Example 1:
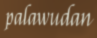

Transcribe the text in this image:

palawudan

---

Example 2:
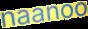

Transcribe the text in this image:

naanoo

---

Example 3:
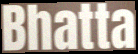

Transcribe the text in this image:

Bhatta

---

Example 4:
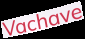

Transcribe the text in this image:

Vachave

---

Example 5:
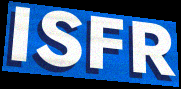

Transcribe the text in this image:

ISFR